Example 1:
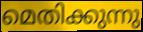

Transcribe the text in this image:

മെതിക്കുന്നു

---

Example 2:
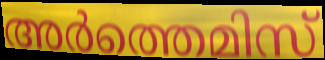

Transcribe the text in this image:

അർത്തെമിസ്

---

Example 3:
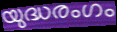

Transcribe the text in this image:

യുദ്ധരംഗം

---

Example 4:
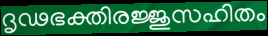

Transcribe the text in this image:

ദൃഢഭക്തിരജ്ജുസഹിതം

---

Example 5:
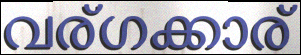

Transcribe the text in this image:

വര്ഗക്കാര്